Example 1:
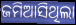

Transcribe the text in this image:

ଜମିଆସିଥିଲା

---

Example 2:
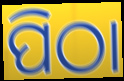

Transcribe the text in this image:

ପିଠା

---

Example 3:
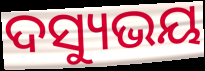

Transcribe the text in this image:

ଦସ୍ୟୁଭୟ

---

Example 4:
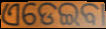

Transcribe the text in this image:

ଏଡେଇବା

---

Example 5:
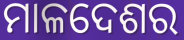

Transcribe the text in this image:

ମାଳଦେଶର